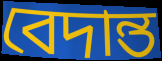
বেদান্ত